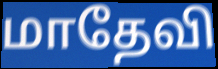
மாதேவி